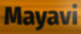
Mayavi